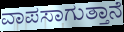
ವಾಪಸಾಗುತ್ತಾನೆ